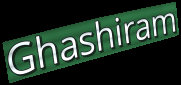
Ghashiram